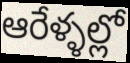
ఆరేళ్ళల్లో